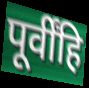
पूर्वींहि